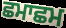
ਛਮਾਛਮ